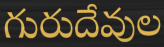
గురుదేవుల